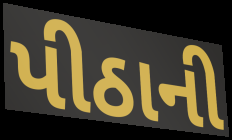
પીઠાની